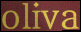
oliva